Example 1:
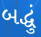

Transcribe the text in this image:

બદ્ધું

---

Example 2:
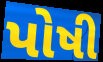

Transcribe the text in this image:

પોષી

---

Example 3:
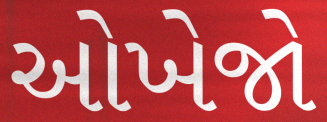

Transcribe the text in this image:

ઓખેજો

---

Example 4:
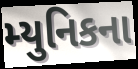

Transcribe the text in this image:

મ્યુનિકના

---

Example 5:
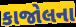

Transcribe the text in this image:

કાજોલના